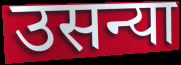
उसन्या